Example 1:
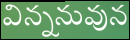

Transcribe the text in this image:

విన్ననువున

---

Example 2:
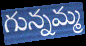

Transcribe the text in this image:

గున్నమ్మ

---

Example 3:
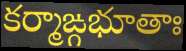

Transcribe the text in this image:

కర్మాఙ్గభూతాః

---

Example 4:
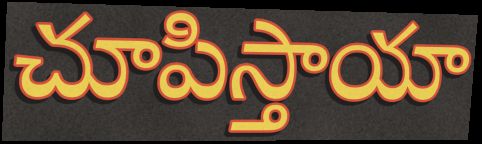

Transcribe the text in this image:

చూపిస్తాయా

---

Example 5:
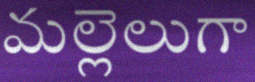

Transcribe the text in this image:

మల్లెలుగా